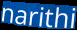
narithi